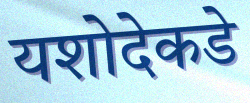
यशोदेकडे